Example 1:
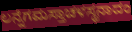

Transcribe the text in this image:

ಲನ್ನೆಗಮಸ್ತಾಚಳಸ್ಥನಾದಂ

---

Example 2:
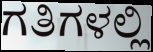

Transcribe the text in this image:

ಗತಿಗಳಲ್ಲಿ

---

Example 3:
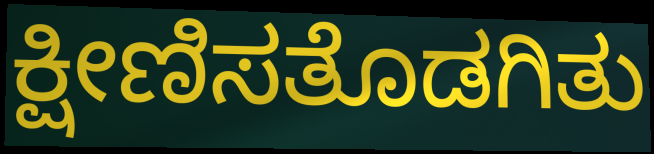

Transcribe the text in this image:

ಕ್ಷೀಣಿಸತೊಡಗಿತು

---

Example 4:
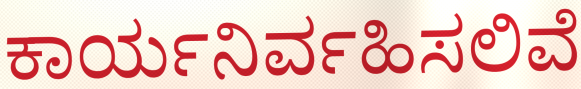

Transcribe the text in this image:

ಕಾರ್ಯನಿರ್ವಹಿಸಲಿವೆ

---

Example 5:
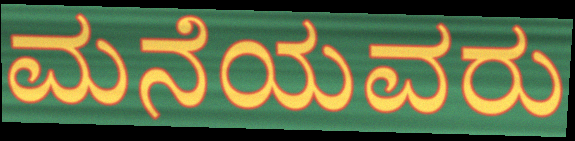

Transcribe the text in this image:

ಮನೆಯವರು